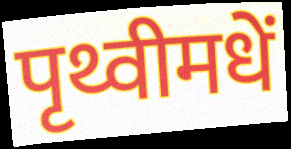
पृथ्वीमधें